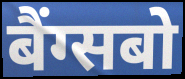
बैंग्सबो